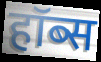
हॉब्स